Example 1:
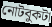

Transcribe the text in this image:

নোটবুকটা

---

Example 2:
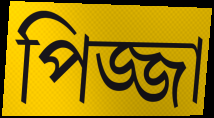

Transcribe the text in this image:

পিজ্জা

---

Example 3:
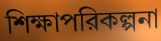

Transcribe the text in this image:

শিক্ষাপরিকল্পনা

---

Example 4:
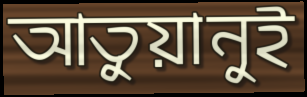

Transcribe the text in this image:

আতুয়ানুই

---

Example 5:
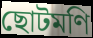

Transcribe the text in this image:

ছোটমণি